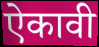
ऐकावी